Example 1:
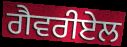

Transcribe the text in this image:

ਗੈਵਰੀਏਲ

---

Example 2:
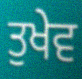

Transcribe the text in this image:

ਤੁਖੇਵ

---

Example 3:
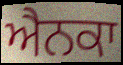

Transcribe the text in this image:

ਐਨਕਾ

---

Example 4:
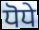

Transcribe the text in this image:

ਧੋਧੇ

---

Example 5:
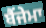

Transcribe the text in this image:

ਬੈਂਜੇਮਾ